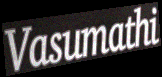
Vasumathi